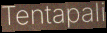
Tentapali